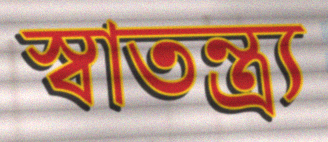
স্বাতন্ত্র্য